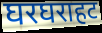
घरघराहट